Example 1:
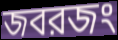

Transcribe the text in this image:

জবরজং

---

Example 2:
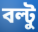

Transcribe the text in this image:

বল্টু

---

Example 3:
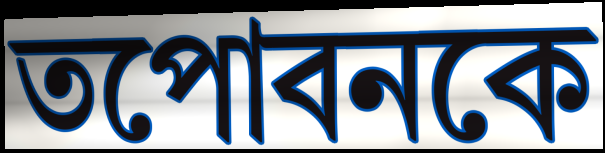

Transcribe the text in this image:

তপোবনকে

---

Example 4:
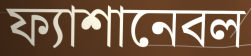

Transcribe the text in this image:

ফ্যাশানেবল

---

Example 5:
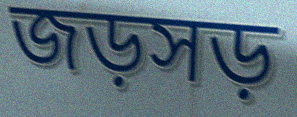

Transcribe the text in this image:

জড়সড়